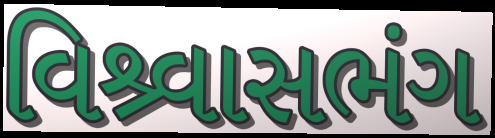
વિશ્ર્વાસભંગ